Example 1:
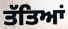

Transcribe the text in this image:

ਤੱਤਿਆਂ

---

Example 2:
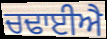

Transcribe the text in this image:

ਚਢਾਈਐ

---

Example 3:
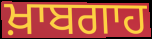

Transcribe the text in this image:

ਖ਼ਾਬਗਾਹ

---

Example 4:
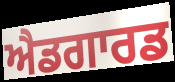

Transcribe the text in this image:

ਐਡਗਾਰਡ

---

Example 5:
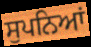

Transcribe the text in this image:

ਸੁਪਨਿਆਂ